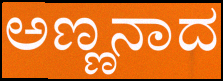
ಅಣ್ಣನಾದ